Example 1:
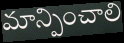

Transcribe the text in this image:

మాన్పించాలి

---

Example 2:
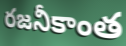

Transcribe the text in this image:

రజనీకాంత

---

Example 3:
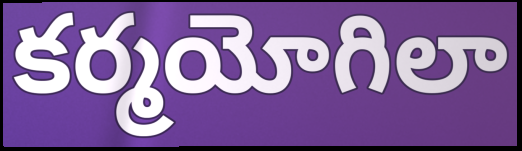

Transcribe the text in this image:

కర్మయోగిలా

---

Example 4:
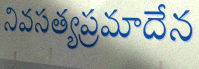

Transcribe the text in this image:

నివసత్యప్రమాదేన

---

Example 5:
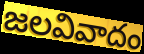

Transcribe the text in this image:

జలవివాదం